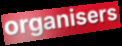
organisers